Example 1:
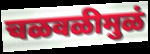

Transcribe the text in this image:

चळवळीमुळं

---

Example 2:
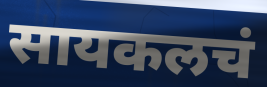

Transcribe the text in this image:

सायकलचं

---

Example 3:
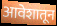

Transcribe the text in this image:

आवेशातून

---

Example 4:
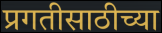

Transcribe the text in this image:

प्रगतीसाठीच्या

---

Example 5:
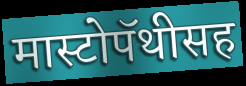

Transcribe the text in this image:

मास्टोपॅथीसह